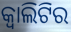
କ୍ୱାଲିଟିର